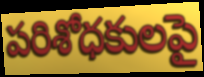
పరిశోధకులపై